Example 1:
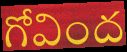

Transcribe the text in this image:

గోవింద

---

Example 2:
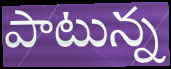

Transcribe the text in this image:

పాటున్న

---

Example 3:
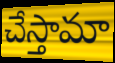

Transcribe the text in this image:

చేస్తామా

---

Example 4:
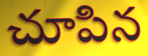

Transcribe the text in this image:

చూపిన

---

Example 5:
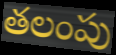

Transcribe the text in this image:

తలంపు